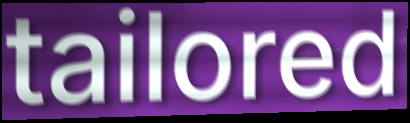
tailored